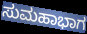
ಸುಮಹಾಭಾಗ